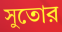
সুতোর